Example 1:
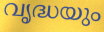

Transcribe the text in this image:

വൃദ്ധയും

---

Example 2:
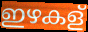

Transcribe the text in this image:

ഇഴകള്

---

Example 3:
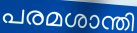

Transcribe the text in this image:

പരമശാന്തി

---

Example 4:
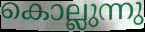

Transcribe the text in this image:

കൊല്ലുന്നു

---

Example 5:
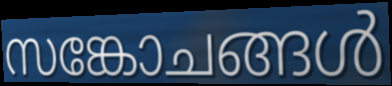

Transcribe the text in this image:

സങ്കോചങ്ങൾ